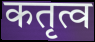
कतृत्व